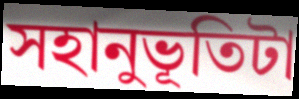
সহানুভূতিটা